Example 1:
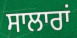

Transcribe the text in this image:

ਸਾਲਾਰਾਂ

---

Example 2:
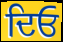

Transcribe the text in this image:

ਦਿਓ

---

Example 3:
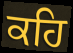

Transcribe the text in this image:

ਕਹਿ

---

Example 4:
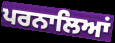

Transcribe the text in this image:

ਪਰਨਾਲਿਆਂ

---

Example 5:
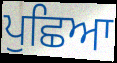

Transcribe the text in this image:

ਪੁਛਿਆ